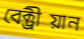
বেক্ট্ৰীয়ান